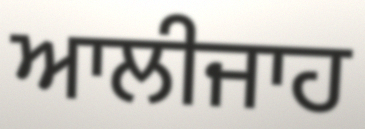
ਆਲੀਜਾਹ